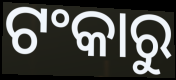
ଟଂକାରୁ